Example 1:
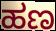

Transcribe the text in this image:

ಹಣ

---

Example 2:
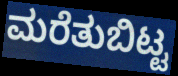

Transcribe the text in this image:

ಮರೆತುಬಿಟ್ಟ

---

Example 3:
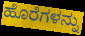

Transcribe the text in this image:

ಹೊರೆಗಳನ್ನು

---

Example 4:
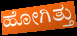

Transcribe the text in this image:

ಹೋಗಿತ್ತು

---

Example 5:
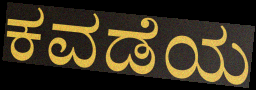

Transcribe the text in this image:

ಕವಡೆಯ